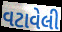
વટાવેલી